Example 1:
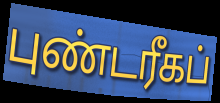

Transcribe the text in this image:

புண்டரீகப்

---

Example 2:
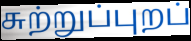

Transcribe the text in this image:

சுற்றுப்புறப்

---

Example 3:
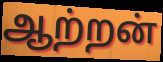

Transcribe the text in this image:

ஆற்றன்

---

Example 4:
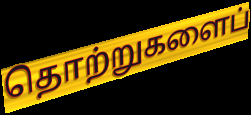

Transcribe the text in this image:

தொற்றுகளைப்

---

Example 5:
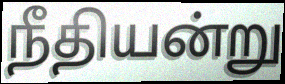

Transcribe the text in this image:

நீதியன்று